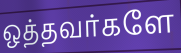
ஒத்தவர்களே